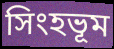
সিংহভূম